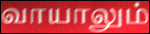
வாயாலும்